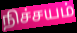
நிச்சயம்